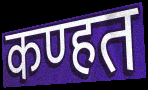
कण्हत